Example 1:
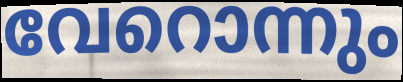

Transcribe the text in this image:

വേറൊന്നും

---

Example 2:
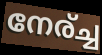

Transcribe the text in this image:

നേര്ച്ച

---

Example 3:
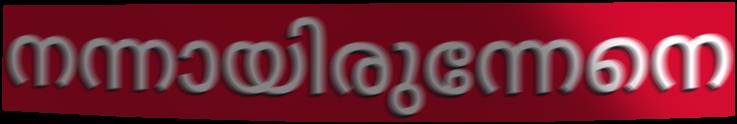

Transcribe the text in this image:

നന്നായിരുന്നേനെ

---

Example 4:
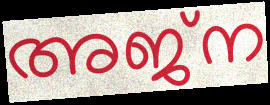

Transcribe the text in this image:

അജ്ന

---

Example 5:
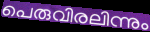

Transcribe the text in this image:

പെരുവിരലിന്നും